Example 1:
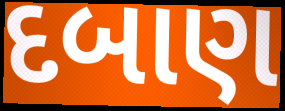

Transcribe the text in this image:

દબાણ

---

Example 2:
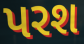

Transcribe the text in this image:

પરશ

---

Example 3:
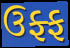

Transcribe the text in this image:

ઉફ્ફ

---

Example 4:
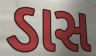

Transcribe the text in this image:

ડાસ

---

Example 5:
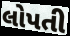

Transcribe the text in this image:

લોપતી